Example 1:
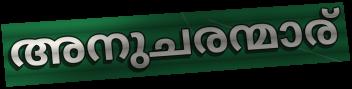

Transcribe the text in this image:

അനുചരന്മാര്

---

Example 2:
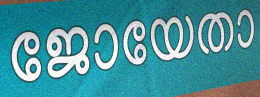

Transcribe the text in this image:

ജോയേതാ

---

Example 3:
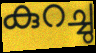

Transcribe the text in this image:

കുറച്ചു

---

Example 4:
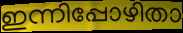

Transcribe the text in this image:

ഇന്നിപ്പോഴിതാ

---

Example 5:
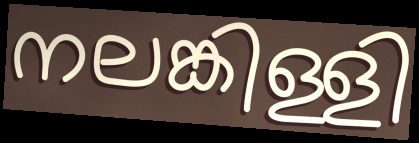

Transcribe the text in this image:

നലങ്കിള്ളി